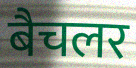
बैचलर